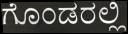
ಗೊಂಡರಲ್ಲಿ